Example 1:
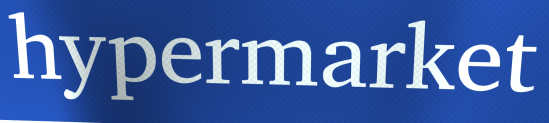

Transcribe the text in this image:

hypermarket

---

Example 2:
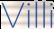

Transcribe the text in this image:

Villi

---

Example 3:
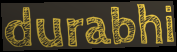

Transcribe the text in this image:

durabhi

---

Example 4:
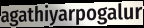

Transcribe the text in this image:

agathiyarpogalur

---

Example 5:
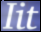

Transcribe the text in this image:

Iit